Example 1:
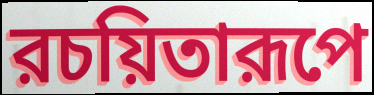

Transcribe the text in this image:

রচয়িতারূপে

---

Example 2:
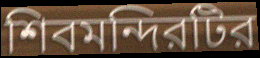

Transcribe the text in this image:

শিবমন্দিরটির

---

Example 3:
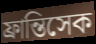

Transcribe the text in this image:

ফ্রান্তিসেক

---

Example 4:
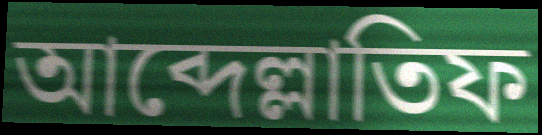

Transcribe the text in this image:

আব্দেল্লাতিফ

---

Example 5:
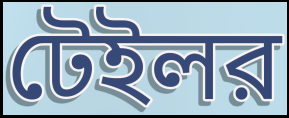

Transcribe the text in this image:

টেইলর